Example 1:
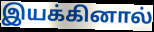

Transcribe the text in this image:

இயக்கினால்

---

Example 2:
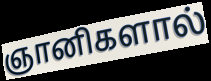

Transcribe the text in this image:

ஞானிகளால்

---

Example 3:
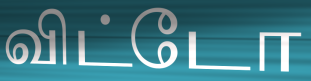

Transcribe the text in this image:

விட்டோ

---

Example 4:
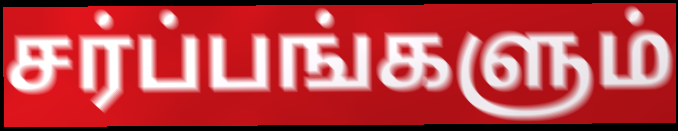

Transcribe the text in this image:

சர்ப்பங்களும்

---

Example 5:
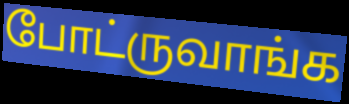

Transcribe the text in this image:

போட்ருவாங்க